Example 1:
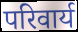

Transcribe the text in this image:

परिवार्य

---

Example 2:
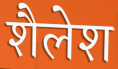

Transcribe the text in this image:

शैलेश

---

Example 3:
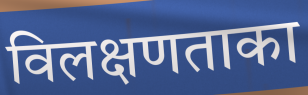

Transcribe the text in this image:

विलक्षणताका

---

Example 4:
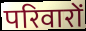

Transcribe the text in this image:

परिवारों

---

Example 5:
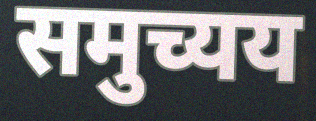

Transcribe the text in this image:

समुच्यय